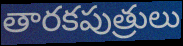
తారకపుత్రులు